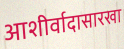
आशीर्वादासारखा